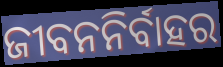
ଜୀବନନିର୍ବାହର